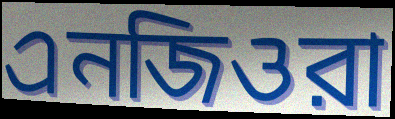
এনজিওরা